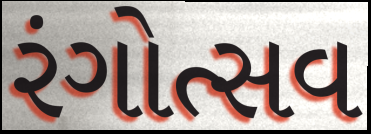
રંગોત્સવ